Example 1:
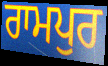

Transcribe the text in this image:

ਰਾਮਪੁਰ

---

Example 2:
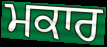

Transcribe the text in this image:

ਮਕਾਰ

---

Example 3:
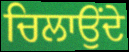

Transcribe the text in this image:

ਚਿਲਾਉਂਦੇ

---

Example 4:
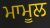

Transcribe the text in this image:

ਮਾਮੂਲ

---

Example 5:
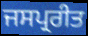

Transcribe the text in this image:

ਜਸਪ੍ਰਰੀਤ